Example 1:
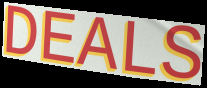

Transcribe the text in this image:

DEALS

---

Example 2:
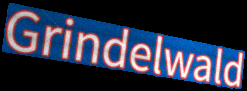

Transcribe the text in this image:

Grindelwald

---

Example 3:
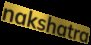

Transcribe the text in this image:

nakshatra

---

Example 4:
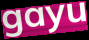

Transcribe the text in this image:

gayu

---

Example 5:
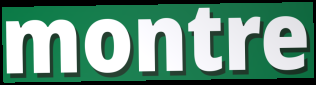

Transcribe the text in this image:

montre